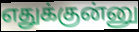
எதுக்குன்னு